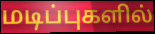
மடிப்புகளில்